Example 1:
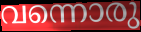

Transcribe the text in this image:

വന്നൊരു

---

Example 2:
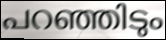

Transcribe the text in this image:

പറഞ്ഞിടും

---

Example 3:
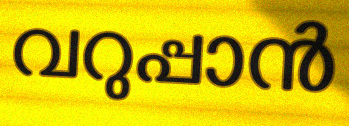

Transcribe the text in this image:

വറുപ്പാൻ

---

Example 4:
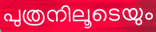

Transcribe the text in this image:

പുത്രനിലൂടെയും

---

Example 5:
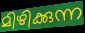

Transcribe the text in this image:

മിഴിക്കുന്ന